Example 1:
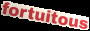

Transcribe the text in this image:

fortuitous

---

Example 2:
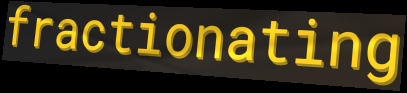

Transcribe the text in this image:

fractionating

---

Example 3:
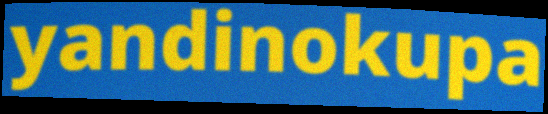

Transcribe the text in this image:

yandinokupa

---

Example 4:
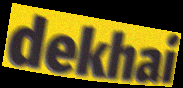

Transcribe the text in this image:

dekhai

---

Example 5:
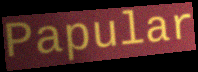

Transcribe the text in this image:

Papular